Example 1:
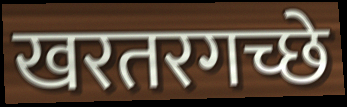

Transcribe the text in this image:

खरतरगच्छे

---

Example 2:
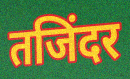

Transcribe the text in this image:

तजिंदर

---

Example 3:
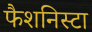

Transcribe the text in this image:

फैशनिस्टा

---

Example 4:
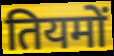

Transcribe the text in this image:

तियमों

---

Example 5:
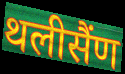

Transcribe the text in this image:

थलीसैंण